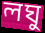
লঘু